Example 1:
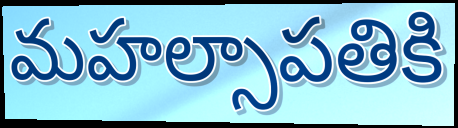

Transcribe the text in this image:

మహల్సాపతికి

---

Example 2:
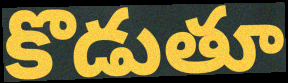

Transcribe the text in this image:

కొడుతూ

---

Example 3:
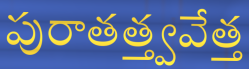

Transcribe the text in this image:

పురాతత్త్వవేత్త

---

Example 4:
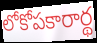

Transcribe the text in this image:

లోకోపకారార్థ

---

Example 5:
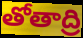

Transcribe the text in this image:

తోతాద్రి